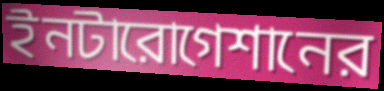
ইনটারোগেশানের